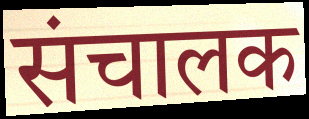
संचालक